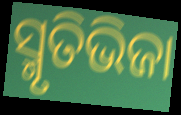
ସ୍ମୃତିଭିଜା